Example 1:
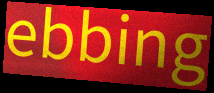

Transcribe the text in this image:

ebbing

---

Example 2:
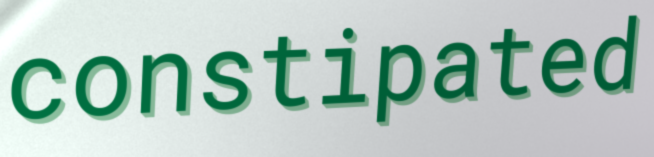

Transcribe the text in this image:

constipated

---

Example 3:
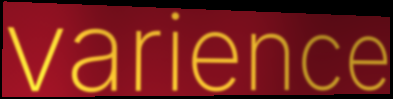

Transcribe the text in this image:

varience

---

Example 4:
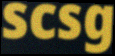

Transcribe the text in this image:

scsg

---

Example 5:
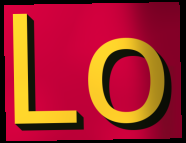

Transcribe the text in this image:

Lo